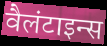
वैलंटाइन्स